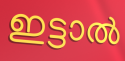
ഇട്ടാൽ